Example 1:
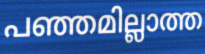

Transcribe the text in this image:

പഞ്ഞമില്ലാത്ത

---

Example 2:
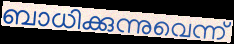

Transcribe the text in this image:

ബാധിക്കുന്നുവെന്ന്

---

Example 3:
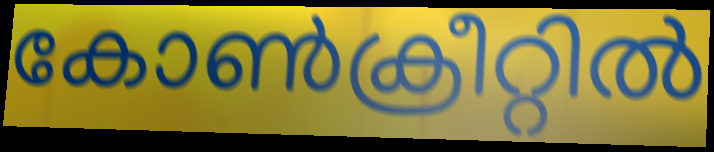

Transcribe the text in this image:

കോൺക്രീറ്റിൽ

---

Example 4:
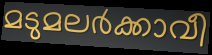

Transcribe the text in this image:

മടുമലർക്കാവീ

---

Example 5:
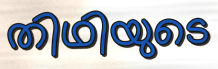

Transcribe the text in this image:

തിഥിയുടെ